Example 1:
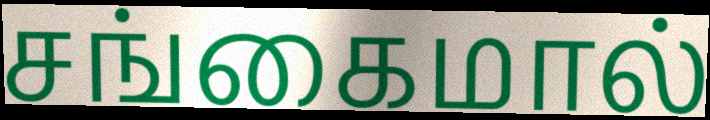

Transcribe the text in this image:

சங்கைமால்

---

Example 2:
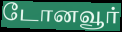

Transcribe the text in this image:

டோனவூர்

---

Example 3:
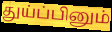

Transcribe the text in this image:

துய்ப்பினும்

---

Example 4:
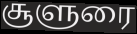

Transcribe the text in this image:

சூளுரை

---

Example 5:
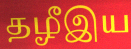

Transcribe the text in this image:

தழீஇய